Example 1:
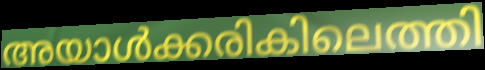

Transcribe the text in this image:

അയാൾക്കരികിലെത്തി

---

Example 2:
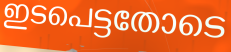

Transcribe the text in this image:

ഇടപെട്ടതോടെ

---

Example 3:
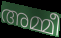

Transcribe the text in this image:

അമ്മീ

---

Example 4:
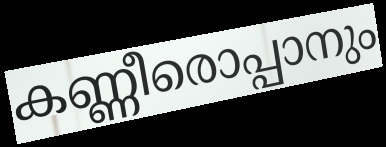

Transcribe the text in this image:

കണ്ണീരൊപ്പാനും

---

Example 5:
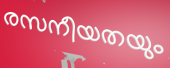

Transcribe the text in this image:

രസനീയതയും